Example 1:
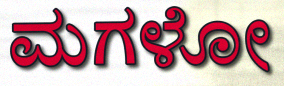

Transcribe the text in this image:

ಮಗಳೋ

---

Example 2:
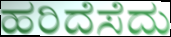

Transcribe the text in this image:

ಹರಿದೆಸೆದು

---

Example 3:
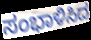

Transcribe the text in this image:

ಸಂಭಾಳಿಸಿದ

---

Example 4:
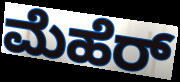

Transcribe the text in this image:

ಮೆಹೆರ್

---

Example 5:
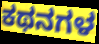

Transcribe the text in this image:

ಕಥನಗಳ